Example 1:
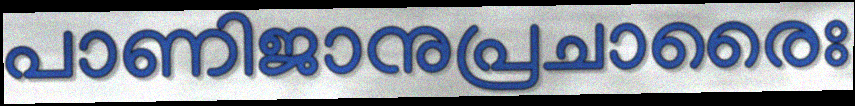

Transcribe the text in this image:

പാണിജാനുപ്രചാരൈഃ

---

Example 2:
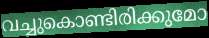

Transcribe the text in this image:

വച്ചുകൊണ്ടിരിക്കുമോ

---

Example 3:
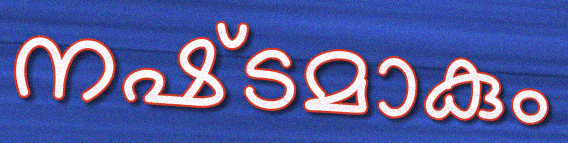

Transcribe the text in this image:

നഷ്‌ടമാകും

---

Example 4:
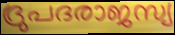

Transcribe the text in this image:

ദ്രുപദരാജസ്യ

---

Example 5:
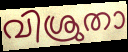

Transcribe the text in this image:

വിശ്രുതാ